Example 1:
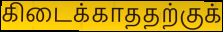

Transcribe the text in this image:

கிடைக்காததற்குக்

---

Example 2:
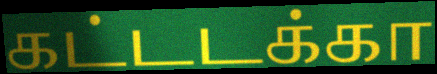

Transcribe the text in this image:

கட்டடக்கா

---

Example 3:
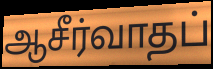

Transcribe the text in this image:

ஆசீர்வாதப்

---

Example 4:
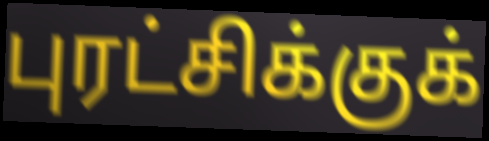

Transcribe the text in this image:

புரட்சிக்குக்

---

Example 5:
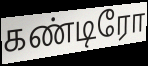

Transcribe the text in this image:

கண்டிரோ